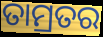
ତାମ୍ରତର